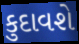
કુદાવશે